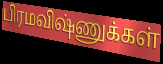
பிரமவிஷ்ணுக்கள்